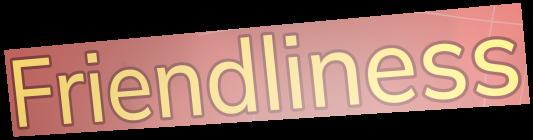
Friendliness